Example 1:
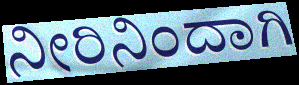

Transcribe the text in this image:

ನೀರಿನಿಂದಾಗಿ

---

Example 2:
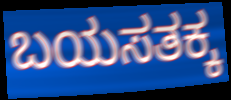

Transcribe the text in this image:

ಬಯಸತಕ್ಕ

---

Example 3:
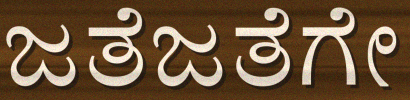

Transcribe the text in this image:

ಜತೆಜತೆಗೇ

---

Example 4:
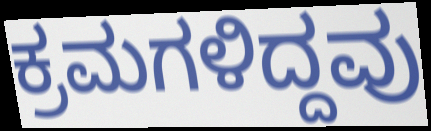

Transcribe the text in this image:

ಕ್ರಮಗಳಿದ್ದವು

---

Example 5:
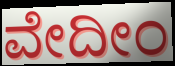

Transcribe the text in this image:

ವೇದೀಂ